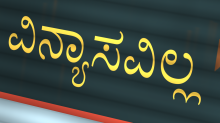
ವಿನ್ಯಾಸವಿಲ್ಲ